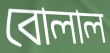
বোলাল